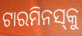
ଟାରମିନସ୍‌କୁ